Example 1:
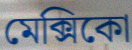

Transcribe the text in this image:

মেক্সিকো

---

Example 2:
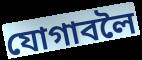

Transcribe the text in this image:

যোগাবলৈ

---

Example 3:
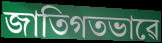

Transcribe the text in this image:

জাতিগতভাৱে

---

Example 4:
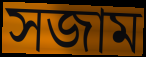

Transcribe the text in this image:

সজাম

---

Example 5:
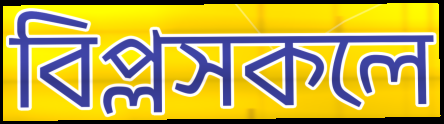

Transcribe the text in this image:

বিপ্লসকলে